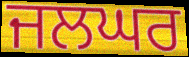
ਜਲਘਰ